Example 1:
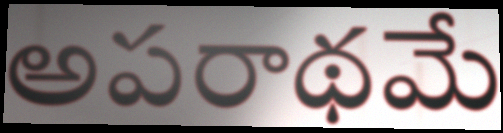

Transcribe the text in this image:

అపరాథమే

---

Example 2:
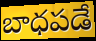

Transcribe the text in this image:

బాధపడే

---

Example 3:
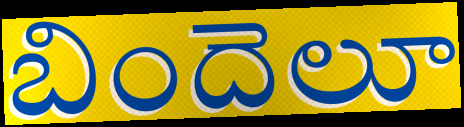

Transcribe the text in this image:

బిందెలూ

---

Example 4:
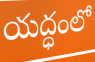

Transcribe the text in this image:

యద్ధంలో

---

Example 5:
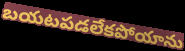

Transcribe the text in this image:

బయటపడలేకపోయాను